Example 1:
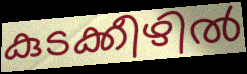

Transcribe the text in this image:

കുടക്കീഴിൽ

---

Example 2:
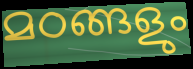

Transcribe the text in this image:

മഠങ്ങളും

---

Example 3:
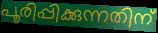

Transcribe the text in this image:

പൂരിപ്പിക്കുന്നതിന്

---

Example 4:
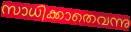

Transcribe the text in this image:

സാധിക്കാതെവന്നു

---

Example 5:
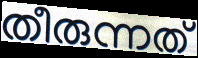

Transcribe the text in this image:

തീരുന്നത്